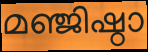
മഞ്ജിഷ്ഠാ